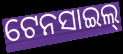
ଟେନସାଇଲ୍